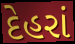
દેહરાં